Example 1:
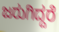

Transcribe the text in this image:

ಜರುಗಿದ್ದರೆ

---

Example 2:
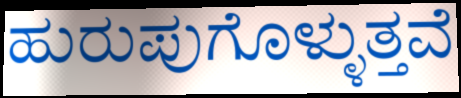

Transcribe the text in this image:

ಹುರುಪುಗೊಳ್ಳುತ್ತವೆ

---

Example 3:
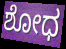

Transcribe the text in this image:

ಶೋಧ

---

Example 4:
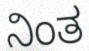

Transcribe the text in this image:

ನಿಂತ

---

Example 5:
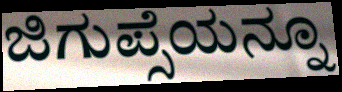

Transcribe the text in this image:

ಜಿಗುಪ್ಸೆಯನ್ನೂ